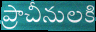
ప్రాచీనులకి